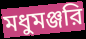
মধুমঞ্জরি